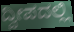
ದ್ವೀಪದಲ್ಲಿ